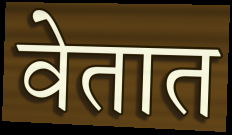
वेतात